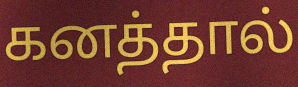
கனத்தால்